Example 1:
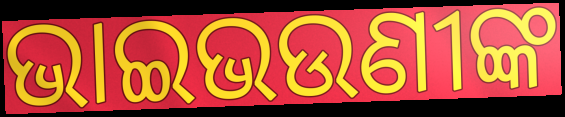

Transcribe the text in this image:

ଭାଇଭଉଣୀଙ୍କ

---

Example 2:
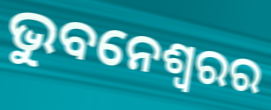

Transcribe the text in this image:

ଭୁବନେଶ୍ୱରର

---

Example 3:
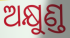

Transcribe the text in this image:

ଅକ୍ଷୁଣ୍ଡ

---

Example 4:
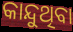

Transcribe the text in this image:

କାନ୍ଦୁଥିବା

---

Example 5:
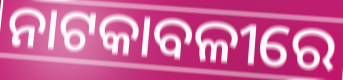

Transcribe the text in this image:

ନାଟକାବଳୀରେ